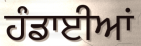
ਹੰਡਾਈਆਂ